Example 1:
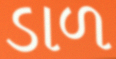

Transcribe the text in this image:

ડાળ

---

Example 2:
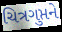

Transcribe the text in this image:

ચિત્રગુપ્તને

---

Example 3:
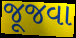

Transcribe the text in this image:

જૂજવા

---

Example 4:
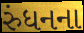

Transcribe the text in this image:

રુંધનના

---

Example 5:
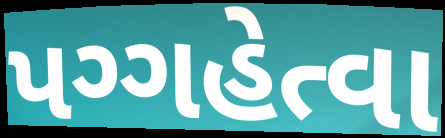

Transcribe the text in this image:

પગ્ગહેત્વા